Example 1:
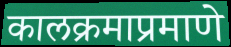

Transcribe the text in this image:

कालक्रमाप्रमाणे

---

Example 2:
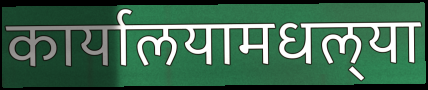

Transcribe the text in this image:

कार्यालयामधल्या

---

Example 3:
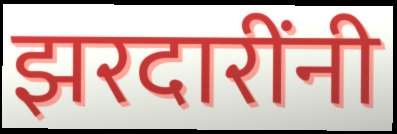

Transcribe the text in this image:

झरदारींनी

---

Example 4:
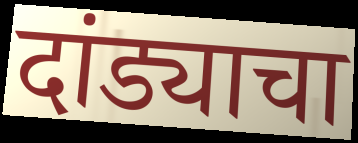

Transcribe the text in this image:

दांड्याचा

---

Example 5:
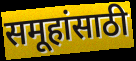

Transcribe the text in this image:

समूहांसाठी